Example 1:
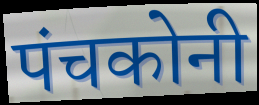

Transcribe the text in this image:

पंचकोनी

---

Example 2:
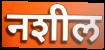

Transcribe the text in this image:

नशील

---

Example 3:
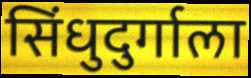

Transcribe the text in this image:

सिंधुदुर्गाला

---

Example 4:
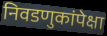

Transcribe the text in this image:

निवडणुकांपेक्षा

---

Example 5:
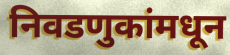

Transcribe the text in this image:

निवडणुकांमधून